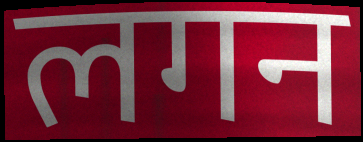
लगन